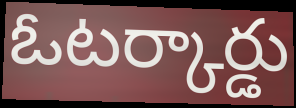
ఓటర్కార్డు